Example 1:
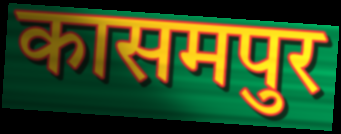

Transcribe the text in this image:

कासमपुर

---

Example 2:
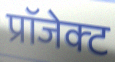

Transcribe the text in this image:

प्रॉजेक्‍ट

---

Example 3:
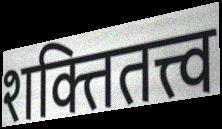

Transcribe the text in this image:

शक्तितत्त्व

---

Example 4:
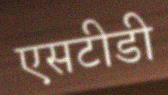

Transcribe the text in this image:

एसटीडी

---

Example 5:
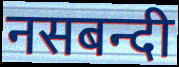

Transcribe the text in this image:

नसबन्दी